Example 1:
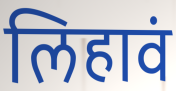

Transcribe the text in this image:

लिहावं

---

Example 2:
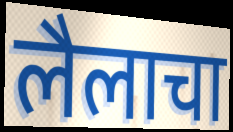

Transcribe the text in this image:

लैलाचा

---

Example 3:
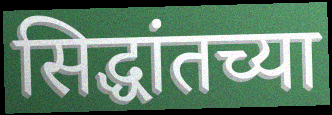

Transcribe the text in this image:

सिद्धांतच्या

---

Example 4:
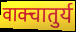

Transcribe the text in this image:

वाक्चातुर्य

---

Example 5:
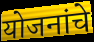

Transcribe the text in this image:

योजनांचे